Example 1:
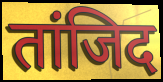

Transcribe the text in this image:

तांजिद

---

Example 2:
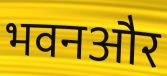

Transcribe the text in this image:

भवनऔर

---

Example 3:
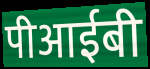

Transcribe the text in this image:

पीआईबी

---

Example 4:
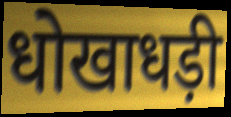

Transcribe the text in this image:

धोखाधड़ी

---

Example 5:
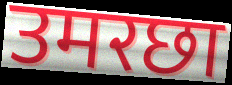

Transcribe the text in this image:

उमरछा